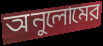
অনুলোমের